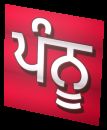
ਪੰਨੂ